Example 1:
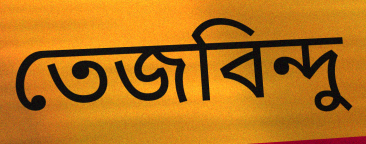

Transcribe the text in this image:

তেজবিন্দু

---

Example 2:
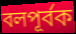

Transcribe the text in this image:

বলপূর্বক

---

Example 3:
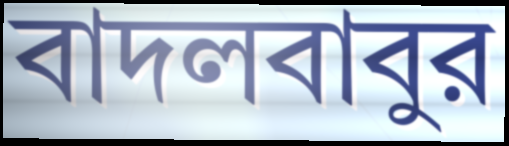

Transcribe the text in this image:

বাদলবাবুর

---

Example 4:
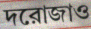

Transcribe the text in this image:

দরোজাও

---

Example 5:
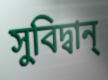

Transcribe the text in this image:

সুবিদ্বান্